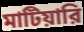
মাটিয়ারি